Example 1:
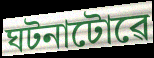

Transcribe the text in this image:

ঘটনাটোৱে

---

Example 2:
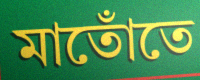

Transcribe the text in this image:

মাতোঁতে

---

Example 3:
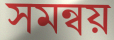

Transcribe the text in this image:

সমন্বয়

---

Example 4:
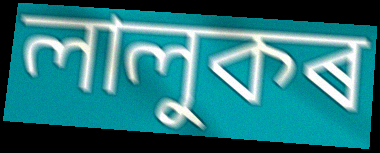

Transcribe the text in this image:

লালুকৰ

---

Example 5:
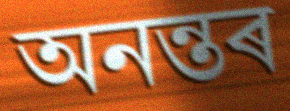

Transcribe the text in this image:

অনন্তৰ